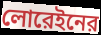
লোরেইনের